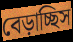
বেড়াচ্ছিস